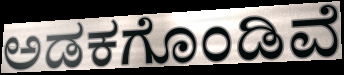
ಅಡಕಗೊಂಡಿವೆ